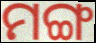
ମଙ୍ଗ